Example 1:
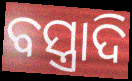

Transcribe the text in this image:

ବସ୍ତ୍ରାଦି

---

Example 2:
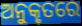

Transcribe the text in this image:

ଅନୁକୃତରେ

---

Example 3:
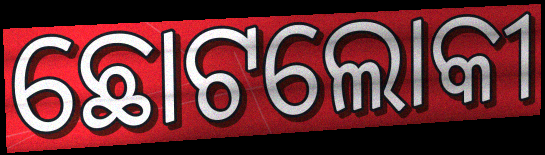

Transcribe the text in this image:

ଛୋଟଲୋକୀ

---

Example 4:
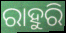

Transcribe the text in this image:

ରାହୁରି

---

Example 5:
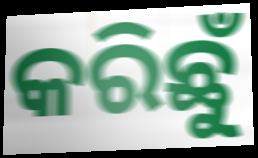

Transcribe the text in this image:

କରିଛୁଁ